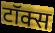
टॉक्स